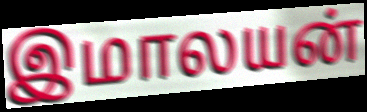
இமாலயன்